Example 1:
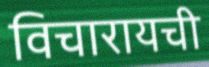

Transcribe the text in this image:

विचारायची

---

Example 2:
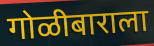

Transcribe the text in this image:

गोळीबाराला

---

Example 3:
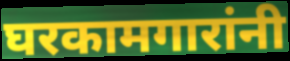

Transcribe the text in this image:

घरकामगारांनी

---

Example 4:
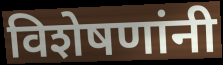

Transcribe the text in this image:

विशेषणांनी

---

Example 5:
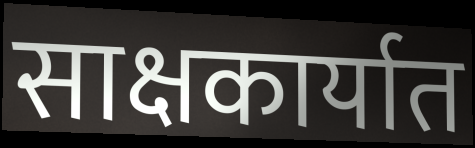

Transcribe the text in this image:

साक्षकार्यात